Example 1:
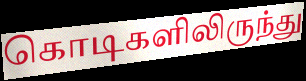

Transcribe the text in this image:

கொடிகளிலிருந்து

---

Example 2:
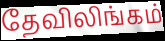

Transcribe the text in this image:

தேவிலிங்கம்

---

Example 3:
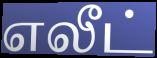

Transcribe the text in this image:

எலீட்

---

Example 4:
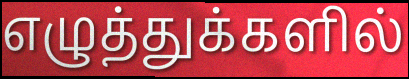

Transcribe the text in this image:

எழுத்துக்களில்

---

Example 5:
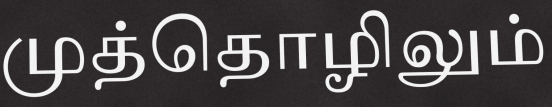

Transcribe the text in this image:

முத்தொழிலும்